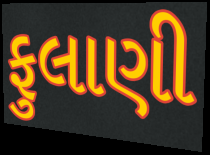
ફુલાણી